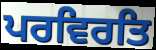
ਪਰਵਿਰਤਿ